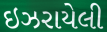
ઇઝરાયેલી